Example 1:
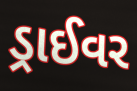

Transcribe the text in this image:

ડ્રાઈવર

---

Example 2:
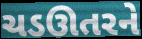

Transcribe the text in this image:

ચડઊતરને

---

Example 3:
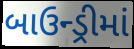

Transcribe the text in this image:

બાઉન્ડ્રીમાં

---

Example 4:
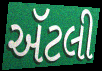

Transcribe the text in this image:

ઍટલી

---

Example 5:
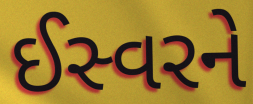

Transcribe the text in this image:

ઈસ્વરને